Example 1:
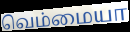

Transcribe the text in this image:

வெம்மையா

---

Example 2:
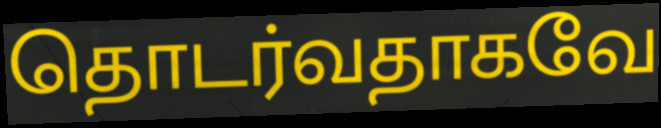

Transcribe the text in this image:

தொடர்வதாகவே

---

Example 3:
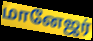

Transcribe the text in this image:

மானேஜர்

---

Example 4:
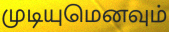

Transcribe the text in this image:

முடியுமெனவும்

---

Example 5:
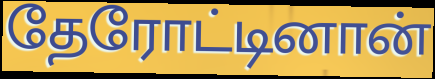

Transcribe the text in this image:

தேரோட்டினான்